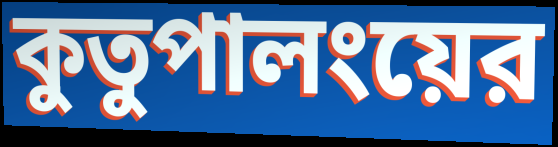
কুতুপালংয়ের